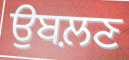
ਉਬਲ਼ਣ